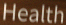
Health